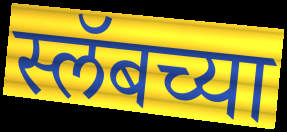
स्लॅबच्या